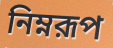
নিম্নরূপ